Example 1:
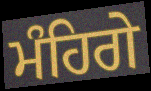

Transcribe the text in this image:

ਮੰਹਿਗੇ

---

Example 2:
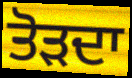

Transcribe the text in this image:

ਤੋੜਦਾ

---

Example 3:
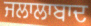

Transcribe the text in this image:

ਜਲਾਲਾਬਾਦ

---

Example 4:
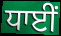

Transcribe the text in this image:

ਧਾਈਂ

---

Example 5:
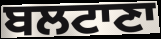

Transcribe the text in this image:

ਬਲਟਾਣਾ